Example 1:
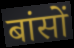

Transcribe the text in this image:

बांसों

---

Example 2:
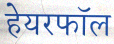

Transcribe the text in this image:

हेयरफॉल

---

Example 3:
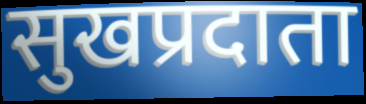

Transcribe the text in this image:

सुखप्रदाता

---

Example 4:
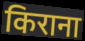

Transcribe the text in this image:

किराना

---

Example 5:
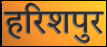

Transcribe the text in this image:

हरिशपुर